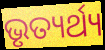
ଭୃତ୍ୟର୍ଥ୍ୟ